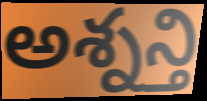
అశ్నన్తి